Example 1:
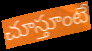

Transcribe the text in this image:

చూస్తూంటే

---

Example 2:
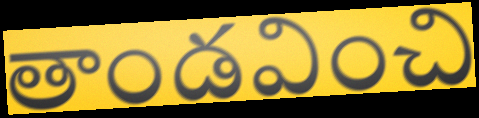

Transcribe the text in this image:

తాండవించి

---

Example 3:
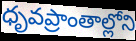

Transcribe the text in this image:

ధృవప్రాంతాల్లోని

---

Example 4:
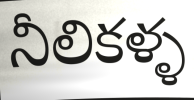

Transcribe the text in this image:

నీలికళ్ళ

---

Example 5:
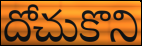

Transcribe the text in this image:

దోచుకొని